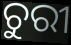
ଚୁରୀ